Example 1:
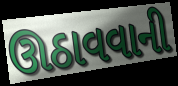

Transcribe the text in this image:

ઊઠાવવાની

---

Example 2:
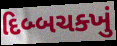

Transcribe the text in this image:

દિબ્બચક્ખું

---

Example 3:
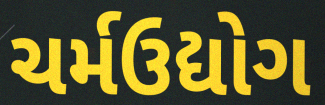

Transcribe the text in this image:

ચર્મઉદ્યોગ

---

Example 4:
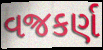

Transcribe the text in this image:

વજ્રકર્ણ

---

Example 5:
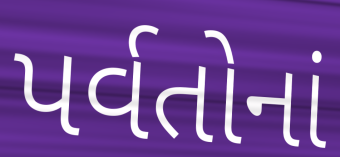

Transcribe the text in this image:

પર્વતોનાં